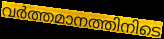
വർത്തമാനത്തിനിടെ